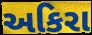
અકિરા